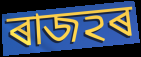
ৰাজহৰ